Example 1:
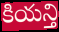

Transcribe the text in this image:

కియన్తి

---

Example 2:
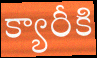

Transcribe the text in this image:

క్యారీకి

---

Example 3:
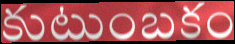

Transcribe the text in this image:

కుటుంబకం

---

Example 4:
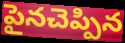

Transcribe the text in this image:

పైనచెప్పిన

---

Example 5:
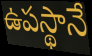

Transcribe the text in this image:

ఉపస్థానే